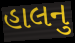
હાલનુ